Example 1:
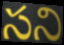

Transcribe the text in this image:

సని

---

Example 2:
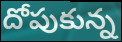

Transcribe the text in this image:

దోపుకున్న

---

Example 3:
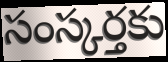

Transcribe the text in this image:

సంస్కర్తకు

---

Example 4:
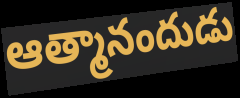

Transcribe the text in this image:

ఆత్మానందుడు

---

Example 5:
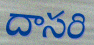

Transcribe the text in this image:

దాసరి